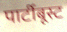
पार्टीबूस्ट